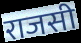
राजसी